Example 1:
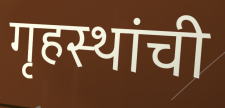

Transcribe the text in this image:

गृहस्थांची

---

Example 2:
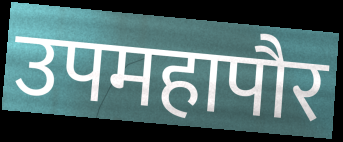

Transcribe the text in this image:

उपमहापौर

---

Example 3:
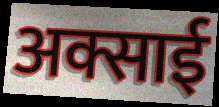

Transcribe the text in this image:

अक्साई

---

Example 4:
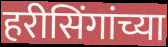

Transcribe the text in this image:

हरीसिंगांच्या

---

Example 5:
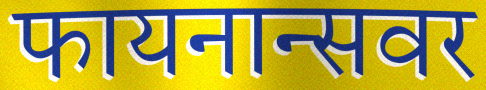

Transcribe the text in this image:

फायनान्सवर